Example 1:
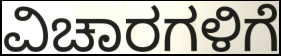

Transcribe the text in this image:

ವಿಚಾರಗಳಿಗೆ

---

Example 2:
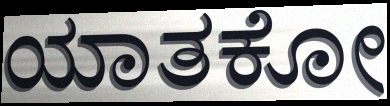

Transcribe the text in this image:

ಯಾತಕೋ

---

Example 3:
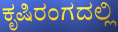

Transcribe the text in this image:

ಕೃಷಿರಂಗದಲ್ಲಿ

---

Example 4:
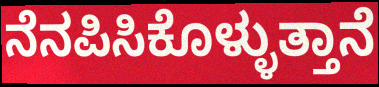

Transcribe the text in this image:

ನೆನಪಿಸಿಕೊಳ್ಳುತ್ತಾನೆ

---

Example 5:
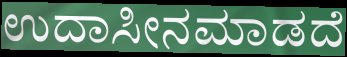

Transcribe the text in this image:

ಉದಾಸೀನಮಾಡದೆ